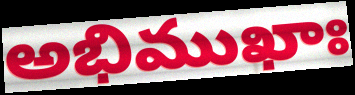
అభిముఖాః